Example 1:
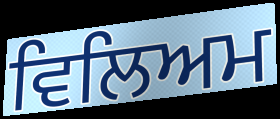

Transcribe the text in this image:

ਵਿਲਿਅਮ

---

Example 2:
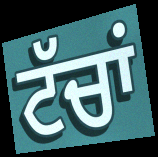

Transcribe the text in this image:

ਟੱਚਾਂ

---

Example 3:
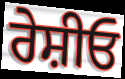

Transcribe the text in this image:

ਰੇਸ਼ੀਓ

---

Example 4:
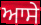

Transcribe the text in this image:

ਆਸੇ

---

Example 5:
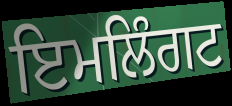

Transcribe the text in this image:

ਇਮਲਿੰਗਟ